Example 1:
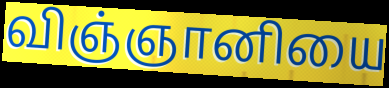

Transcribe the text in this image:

விஞ்ஞானியை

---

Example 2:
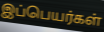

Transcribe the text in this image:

இப்பெயர்கள்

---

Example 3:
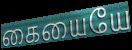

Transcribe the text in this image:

கையையே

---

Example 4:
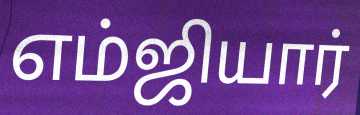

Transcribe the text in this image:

எம்ஜியார்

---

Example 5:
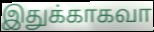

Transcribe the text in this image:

இதுக்காகவா